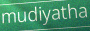
mudiyatha